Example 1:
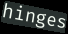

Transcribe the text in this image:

hinges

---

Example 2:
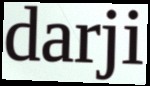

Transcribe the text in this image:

darji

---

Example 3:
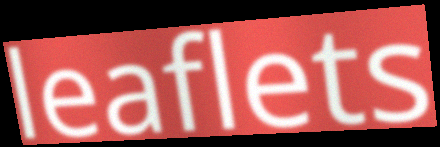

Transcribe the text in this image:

leaflets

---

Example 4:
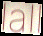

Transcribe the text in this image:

lall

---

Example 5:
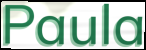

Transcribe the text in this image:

Paula